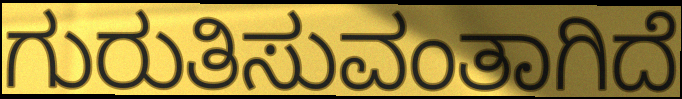
ಗುರುತಿಸುವಂತಾಗಿದೆ